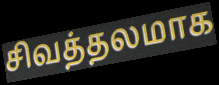
சிவத்தலமாக